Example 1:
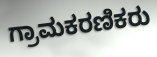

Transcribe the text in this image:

ಗ್ರಾಮಕರಣಿಕರು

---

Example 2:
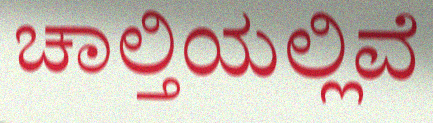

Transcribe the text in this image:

ಚಾಲ್ತಿಯಲ್ಲಿವೆ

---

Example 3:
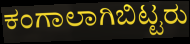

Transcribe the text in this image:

ಕಂಗಾಲಾಗಿಬಿಟ್ಟರು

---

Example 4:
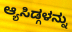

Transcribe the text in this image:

ಆ್ಯಸಿಡ್ಗಳನ್ನು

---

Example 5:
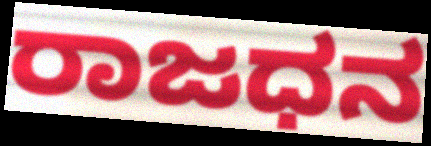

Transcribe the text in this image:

ರಾಜಧನ